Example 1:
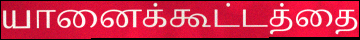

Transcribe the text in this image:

யானைக்கூட்டத்தை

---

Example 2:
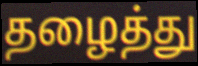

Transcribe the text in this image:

தழைத்து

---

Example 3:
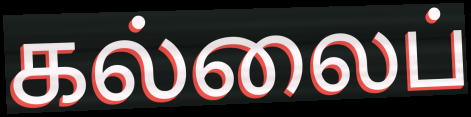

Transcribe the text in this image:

கல்லைப்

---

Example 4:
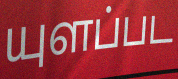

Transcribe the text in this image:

யுளப்பட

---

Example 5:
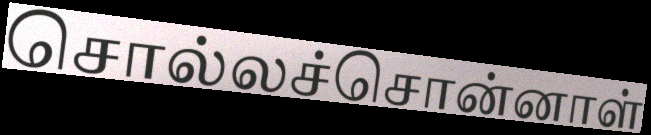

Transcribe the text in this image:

சொல்லச்சொன்னாள்